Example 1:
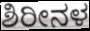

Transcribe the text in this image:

ಶಿರೀನಳ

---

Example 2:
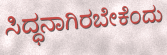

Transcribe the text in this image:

ಸಿದ್ಧನಾಗಿರಬೇಕೆಂದು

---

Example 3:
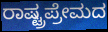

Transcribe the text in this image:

ರಾಷ್ಟ್ರಪ್ರೇಮದ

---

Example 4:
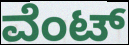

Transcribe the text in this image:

ವೆಂಟ್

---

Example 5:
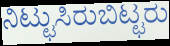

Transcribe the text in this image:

ನಿಟ್ಟುಸಿರುಬಿಟ್ಟರು